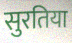
सुरतिया